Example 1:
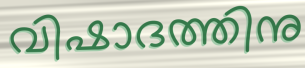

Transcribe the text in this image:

വിഷാദത്തിനു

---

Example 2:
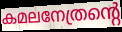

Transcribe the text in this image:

കമലനേത്രന്റെ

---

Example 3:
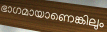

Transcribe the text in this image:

ഭാഗമായാണെങ്കിലും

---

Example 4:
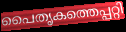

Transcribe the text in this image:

പൈതൃകത്തെപ്പറ്റി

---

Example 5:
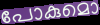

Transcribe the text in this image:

പോകുമൊ